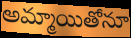
అమ్మాయితోనూ